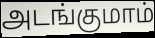
அடங்குமாம்